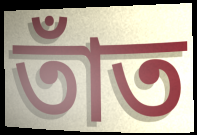
তাঁত